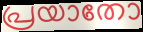
പ്രയാതോ